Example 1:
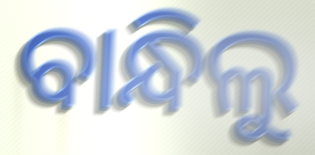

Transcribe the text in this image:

ବାନ୍ଧିଲୁ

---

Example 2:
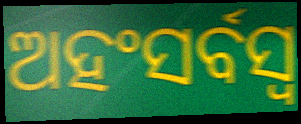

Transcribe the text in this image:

ଅହଂସର୍ବସ୍ୱ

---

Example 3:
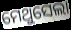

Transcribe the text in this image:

ମେଥୁସେଲା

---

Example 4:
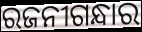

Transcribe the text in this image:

ରଜନୀଗନ୍ଧାର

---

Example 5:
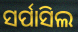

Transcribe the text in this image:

ସର୍ପାସିଲ